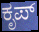
ಕೃಪ್